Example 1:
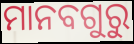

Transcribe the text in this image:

ମାନବଗୁରୁ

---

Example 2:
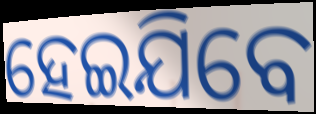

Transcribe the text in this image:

ହେଇଯିବେ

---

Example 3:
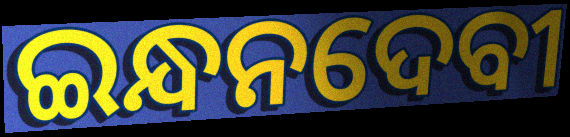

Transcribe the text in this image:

ଇନ୍ଧନଦେବୀ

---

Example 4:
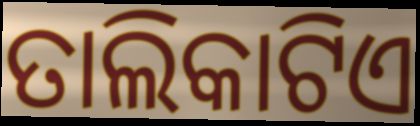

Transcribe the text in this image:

ତାଲିକାଟିଏ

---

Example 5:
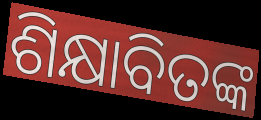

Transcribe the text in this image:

ଶିକ୍ଷାବିତଙ୍କ